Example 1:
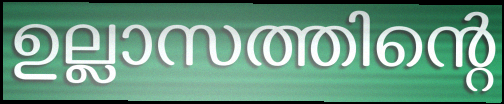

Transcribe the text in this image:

ഉല്ലാസത്തിന്റെ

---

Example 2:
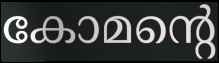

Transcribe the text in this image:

കോമന്റെ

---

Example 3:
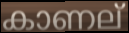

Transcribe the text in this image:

കാണല്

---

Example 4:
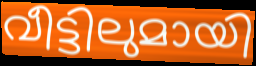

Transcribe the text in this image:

വീട്ടിലുമായി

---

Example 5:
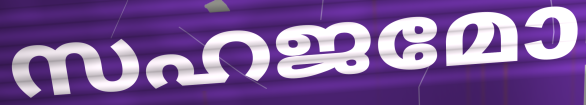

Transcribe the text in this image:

സഹജമോ